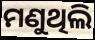
ମଣୁଥିଲି